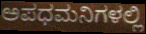
ಅಪಧಮನಿಗಳಲ್ಲಿ